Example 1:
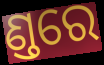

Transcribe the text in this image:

ଣ୍ଡରେ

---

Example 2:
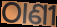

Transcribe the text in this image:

ଠାଣୀ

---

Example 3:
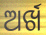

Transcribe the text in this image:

ଅର୍ଖ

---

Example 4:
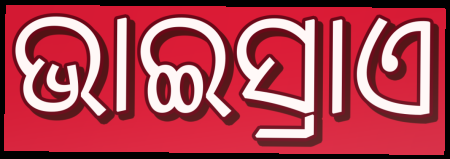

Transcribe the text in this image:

ଭାଇସ୍ରାଏ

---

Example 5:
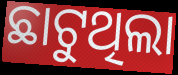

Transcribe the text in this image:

ଛାଟୁଥିଲା